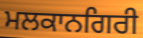
ਮਲਕਾਨਗਿਰੀ